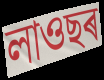
লাওছৰ